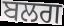
ਬਲਗ